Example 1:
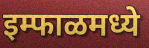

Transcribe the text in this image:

इम्फाळमध्ये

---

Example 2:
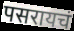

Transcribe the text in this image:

पसरायचं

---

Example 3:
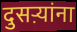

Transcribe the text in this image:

दुसऱ्‍यांना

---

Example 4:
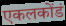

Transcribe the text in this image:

एकलकोंडं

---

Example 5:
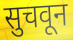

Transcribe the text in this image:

सुचवून